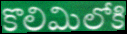
కొలిమిలోకి